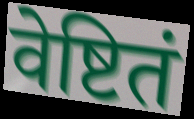
वेष्टितं